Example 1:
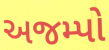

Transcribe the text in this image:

અજમ્પો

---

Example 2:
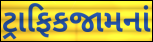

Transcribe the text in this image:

ટ્રાફિકજામનાં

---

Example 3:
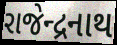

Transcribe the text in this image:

રાજેન્દ્રનાથ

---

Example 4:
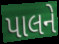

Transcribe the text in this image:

પાલને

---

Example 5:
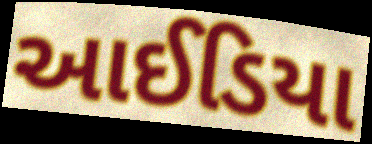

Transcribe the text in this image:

આઈડિયા